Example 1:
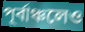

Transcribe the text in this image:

পূর্বাঞ্চলেও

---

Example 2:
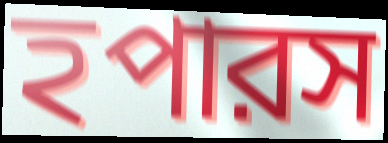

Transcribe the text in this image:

হপারস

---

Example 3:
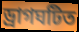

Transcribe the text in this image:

ড্রাগঘটিত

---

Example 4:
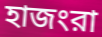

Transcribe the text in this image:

হাজংরা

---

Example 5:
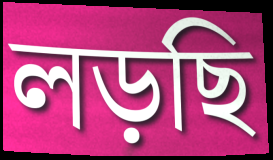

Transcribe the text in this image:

লড়ছি